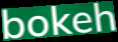
bokeh